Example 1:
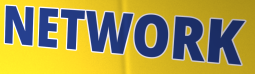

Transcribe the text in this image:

NETWORK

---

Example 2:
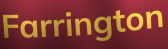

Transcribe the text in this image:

Farrington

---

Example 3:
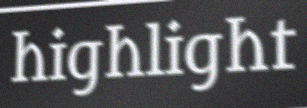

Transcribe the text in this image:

highlight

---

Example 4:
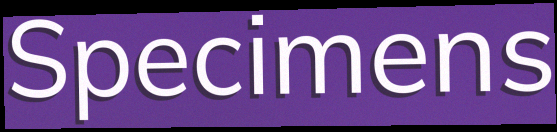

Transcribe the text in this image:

Specimens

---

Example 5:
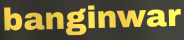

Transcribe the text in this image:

banginwar